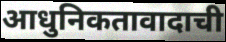
आधुनिकतावादाची